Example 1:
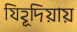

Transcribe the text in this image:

যিহূদিয়ায়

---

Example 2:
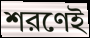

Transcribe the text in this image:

শরণেই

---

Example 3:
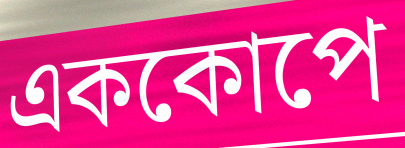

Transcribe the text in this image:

এককোপে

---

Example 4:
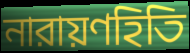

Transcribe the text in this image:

নারায়ণহিতি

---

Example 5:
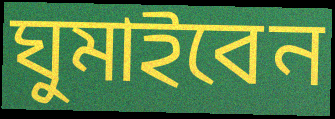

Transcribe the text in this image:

ঘুমাইবেন